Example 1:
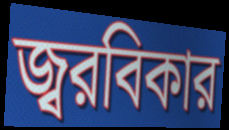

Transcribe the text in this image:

জ্বরবিকার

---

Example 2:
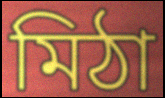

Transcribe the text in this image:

মিঠা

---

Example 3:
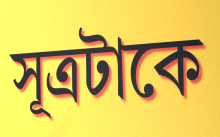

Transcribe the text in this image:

সূত্রটাকে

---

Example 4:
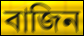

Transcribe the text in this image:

বাজিন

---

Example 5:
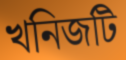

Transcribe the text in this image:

খনিজটি